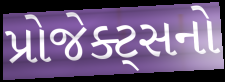
પ્રોજેક્ટ્સનો